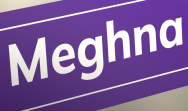
Meghna